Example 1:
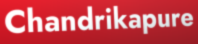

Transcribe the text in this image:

Chandrikapure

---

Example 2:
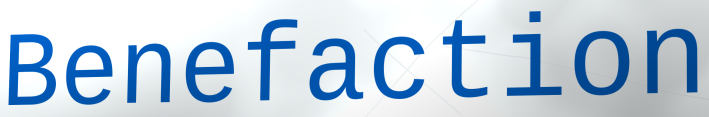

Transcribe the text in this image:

Benefaction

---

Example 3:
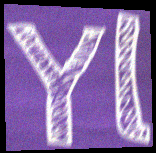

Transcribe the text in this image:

Yl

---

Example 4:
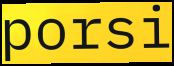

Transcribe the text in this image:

porsi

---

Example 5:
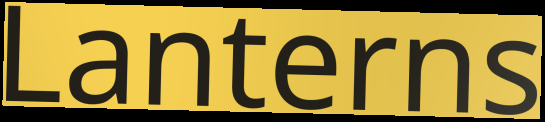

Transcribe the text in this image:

Lanterns